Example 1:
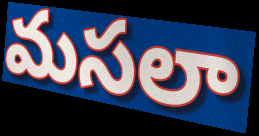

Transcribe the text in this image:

మసలా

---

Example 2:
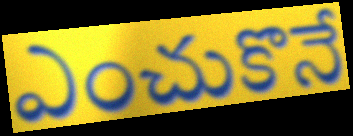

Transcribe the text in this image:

ఎంచుకొనే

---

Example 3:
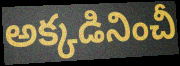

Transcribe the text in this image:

అక్కడినించీ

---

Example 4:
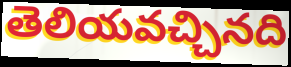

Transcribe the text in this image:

తెలియవచ్చినది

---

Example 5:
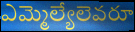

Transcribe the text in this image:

ఎమ్మెల్యేలెవరూ